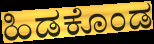
ಹಿಡಕೊಂಡ